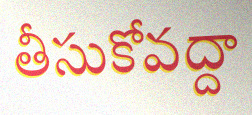
తీసుకోవద్దా